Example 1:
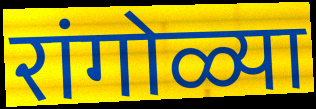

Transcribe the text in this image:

रांगोळ्या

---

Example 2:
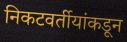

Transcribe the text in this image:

निकटवर्तीयांकडून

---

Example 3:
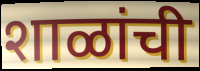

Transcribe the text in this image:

शाळांची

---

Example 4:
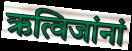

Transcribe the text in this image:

ऋत्विजांनां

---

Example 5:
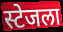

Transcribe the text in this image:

स्टेजला